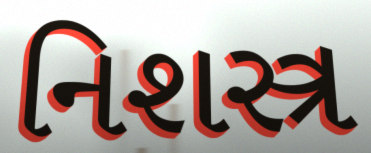
નિશસ્ત્ર